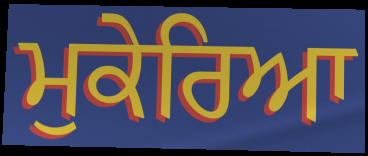
ਮੁਕੇਰਿਆ